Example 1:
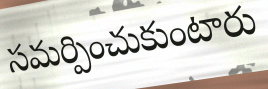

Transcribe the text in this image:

సమర్పించుకుంటారు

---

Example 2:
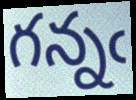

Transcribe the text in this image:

గన్నఁ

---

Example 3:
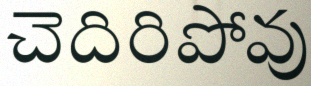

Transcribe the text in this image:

చెదిరిపోవు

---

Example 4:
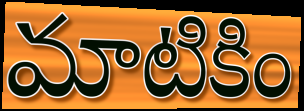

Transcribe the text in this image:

మాటికిం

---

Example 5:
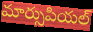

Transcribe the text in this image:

మార్సుపియల్